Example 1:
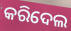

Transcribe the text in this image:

କରିଦେଲ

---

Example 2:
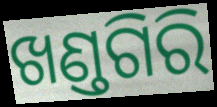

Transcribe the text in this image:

ଖଣ୍ଡଗିରି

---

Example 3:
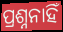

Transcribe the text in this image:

ପ୍ରଶ୍ନନାହିଁ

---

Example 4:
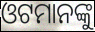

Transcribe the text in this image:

ଓଟମାନଙ୍କୁ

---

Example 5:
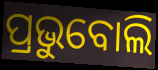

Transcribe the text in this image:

ପ୍ରଭୁବୋଲି